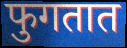
फुगतात